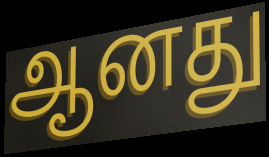
ஆனது